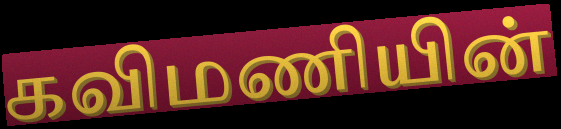
கவிமணியின்